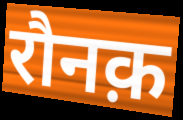
रौनक़